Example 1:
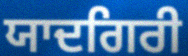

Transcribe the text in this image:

ਯਾਦਗਿਰੀ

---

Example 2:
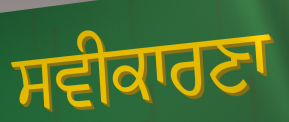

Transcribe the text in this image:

ਸਵੀਕਾਰਣਾ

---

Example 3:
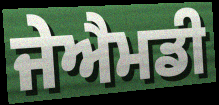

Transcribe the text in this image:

ਜੇਐਮਡੀ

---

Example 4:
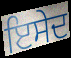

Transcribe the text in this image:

ਇਸੇਦ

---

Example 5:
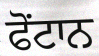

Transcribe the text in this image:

ਫੋਂਟਾਨ